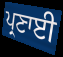
ਪ੍ਰਣਾਈ